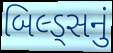
બિલ્ડ્સનું